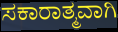
ಸಕಾರಾತ್ಮವಾಗಿ